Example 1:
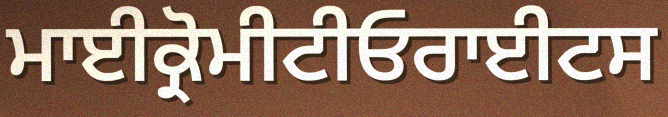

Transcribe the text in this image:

ਮਾਈਕ੍ਰੋਮੀਟੀਓਰਾਈਟਸ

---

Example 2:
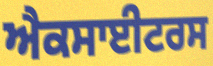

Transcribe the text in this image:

ਐਕਸਾਈਟਰਸ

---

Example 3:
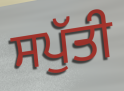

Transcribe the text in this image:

ਸਪੁੱਤੀ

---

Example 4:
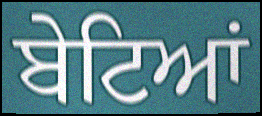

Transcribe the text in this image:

ਬੇਟਿਆਂ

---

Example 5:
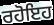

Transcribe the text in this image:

ਰਹੋਇਹ